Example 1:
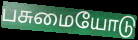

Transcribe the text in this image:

பசுமையோடு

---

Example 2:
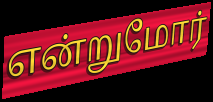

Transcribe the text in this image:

என்றுமோர்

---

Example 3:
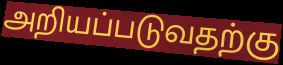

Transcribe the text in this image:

அறியப்படுவதற்கு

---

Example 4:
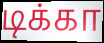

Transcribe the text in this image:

டிக்கா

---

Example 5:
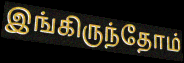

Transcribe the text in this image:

இங்கிருந்தோம்